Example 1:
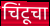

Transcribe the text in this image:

चिंटूचा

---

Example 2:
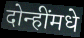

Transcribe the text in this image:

दोन्हींमधे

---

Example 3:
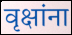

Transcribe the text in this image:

वृक्षांना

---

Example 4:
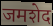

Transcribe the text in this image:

जमशेद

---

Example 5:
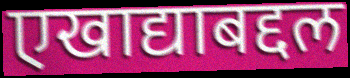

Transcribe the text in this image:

एखाद्याबद्दल